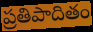
ప్రతిపాదితం